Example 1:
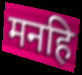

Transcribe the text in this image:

मनहि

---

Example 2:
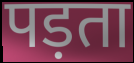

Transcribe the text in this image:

पड़ता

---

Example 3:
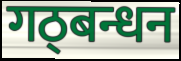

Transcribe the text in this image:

गठ्बन्धन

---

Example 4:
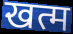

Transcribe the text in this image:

खत्म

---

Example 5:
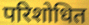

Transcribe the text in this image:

परिशोधित